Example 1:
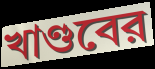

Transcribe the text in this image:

খাণ্ডবের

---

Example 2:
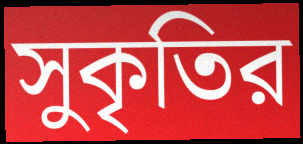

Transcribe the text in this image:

সুকৃতির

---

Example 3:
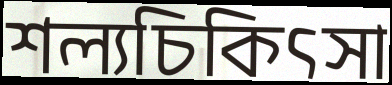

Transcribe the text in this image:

শল্যচিকিৎসা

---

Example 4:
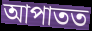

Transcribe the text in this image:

আপাতত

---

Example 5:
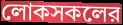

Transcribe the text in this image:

লোকসকলের